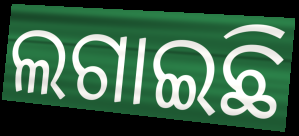
ଲଗାଇଛି